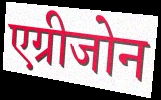
एग्रीजोन